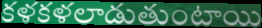
కళకళలాడుతుంటాయి